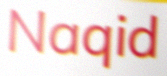
Naqid